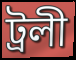
ট্ৰলী